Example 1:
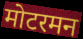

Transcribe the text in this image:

मोटरमन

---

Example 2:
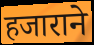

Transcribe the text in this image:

हजाराने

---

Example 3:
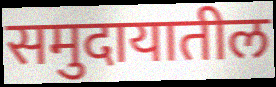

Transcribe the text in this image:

समुदायातील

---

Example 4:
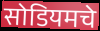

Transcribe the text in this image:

सोडियमचे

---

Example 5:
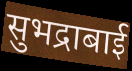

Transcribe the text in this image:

सुभद्राबाई